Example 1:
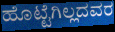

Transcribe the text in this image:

ಹೊಟ್ಟೆಗಿಲ್ಲದವರ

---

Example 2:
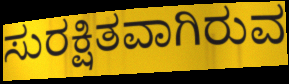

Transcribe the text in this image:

ಸುರಕ್ಷಿತವಾಗಿರುವ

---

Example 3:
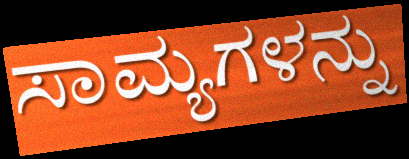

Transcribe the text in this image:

ಸಾಮ್ಯಗಳನ್ನು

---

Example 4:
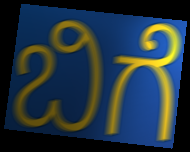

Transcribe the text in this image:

ಬಿಗೆ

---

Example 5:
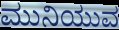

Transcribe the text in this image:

ಮುನಿಯುವ